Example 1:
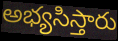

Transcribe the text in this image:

అభ్యసిస్తారు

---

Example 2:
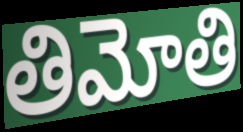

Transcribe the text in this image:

తిమోతి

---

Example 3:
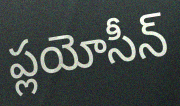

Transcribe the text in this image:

ప్లయోసీన్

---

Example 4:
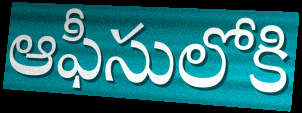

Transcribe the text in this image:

ఆఫీసులోకి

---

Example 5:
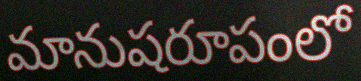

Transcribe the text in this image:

మానుషరూపంలో